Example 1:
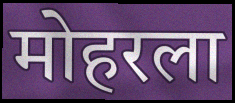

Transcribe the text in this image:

मोहरला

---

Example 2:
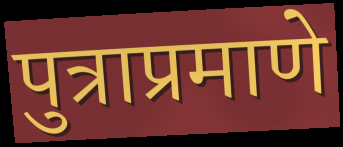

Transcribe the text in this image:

पुत्राप्रमाणे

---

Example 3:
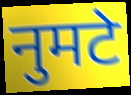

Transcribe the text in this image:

नुमटे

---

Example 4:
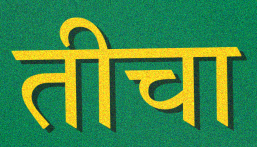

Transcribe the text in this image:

तीचा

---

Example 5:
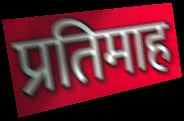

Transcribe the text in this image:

प्रतिमाह